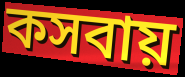
কসবায়